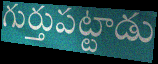
గుర్తుపట్టాడు